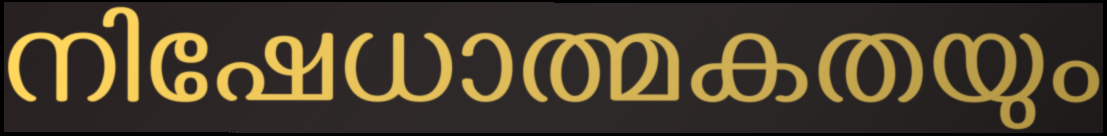
നിഷേധാത്മകതയും